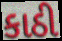
કાઠી